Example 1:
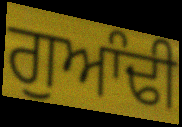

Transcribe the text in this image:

ਗੁਆੰਢੀ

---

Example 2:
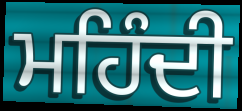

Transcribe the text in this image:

ਮਹਿੰਦੀ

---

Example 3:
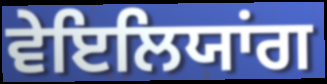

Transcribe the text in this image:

ਵੇਇਲਿਯਾਂਗ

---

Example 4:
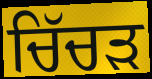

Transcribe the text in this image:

ਚਿੱਚੜ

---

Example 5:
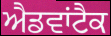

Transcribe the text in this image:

ਐਡਵਾਂਟੈਕ